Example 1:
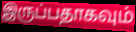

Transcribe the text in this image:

இருப்பதாகவும்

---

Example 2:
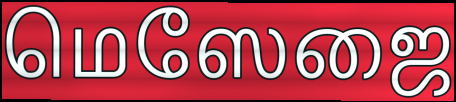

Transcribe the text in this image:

மெஸேஜை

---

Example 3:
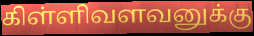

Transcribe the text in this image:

கிள்ளிவளவனுக்கு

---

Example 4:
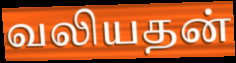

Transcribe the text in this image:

வலியதன்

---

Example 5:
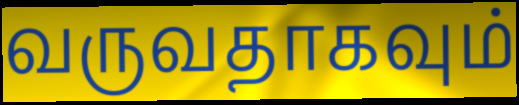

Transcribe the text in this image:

வருவதாகவும்